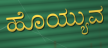
ಹೊಯ್ಯುವ